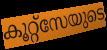
കൂറ്റ്സേയുടെ